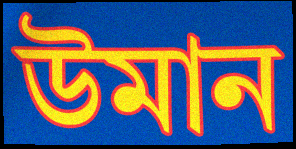
উমান